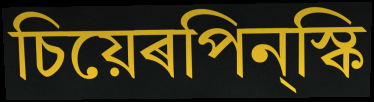
চিয়েৰপিন্‌স্কি